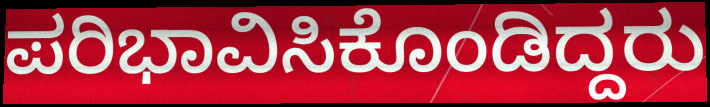
ಪರಿಭಾವಿಸಿಕೊಂಡಿದ್ದರು